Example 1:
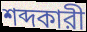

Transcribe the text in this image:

শব্দকারী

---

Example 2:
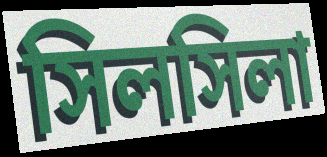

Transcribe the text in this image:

সিলসিলা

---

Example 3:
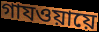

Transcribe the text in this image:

গাযওয়ায়ে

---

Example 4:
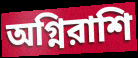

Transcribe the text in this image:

অগ্নিরাশি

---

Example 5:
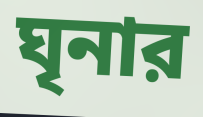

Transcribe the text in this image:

ঘৃনার